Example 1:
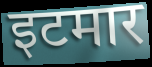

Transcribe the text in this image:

इटमार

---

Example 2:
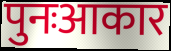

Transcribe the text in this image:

पुनःआकार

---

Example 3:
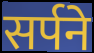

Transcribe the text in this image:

सर्पने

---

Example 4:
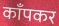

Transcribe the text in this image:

काँपकर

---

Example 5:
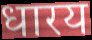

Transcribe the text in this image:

धारय